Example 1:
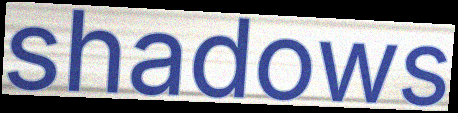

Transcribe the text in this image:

shadows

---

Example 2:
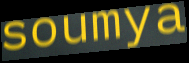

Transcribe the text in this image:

soumya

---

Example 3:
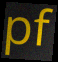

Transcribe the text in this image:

pf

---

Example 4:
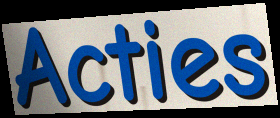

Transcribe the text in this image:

Acties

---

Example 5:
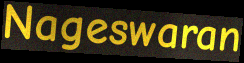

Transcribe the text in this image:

Nageswaran